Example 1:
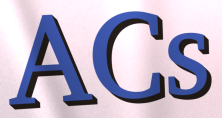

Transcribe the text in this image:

ACs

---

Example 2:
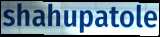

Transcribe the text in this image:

shahupatole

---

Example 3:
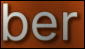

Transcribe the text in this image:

ber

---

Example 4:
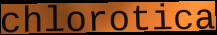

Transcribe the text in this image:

chlorotica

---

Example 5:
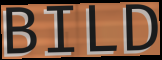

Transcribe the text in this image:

BILD